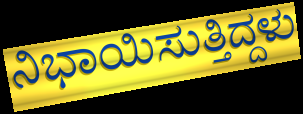
ನಿಭಾಯಿಸುತ್ತಿದ್ದಳು